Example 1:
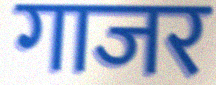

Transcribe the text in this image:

गाजर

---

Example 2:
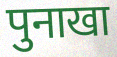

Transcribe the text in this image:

पुनाखा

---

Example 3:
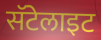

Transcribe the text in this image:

सॅटेलाइट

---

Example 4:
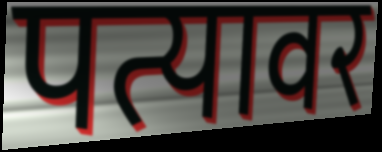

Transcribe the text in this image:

पत्यावर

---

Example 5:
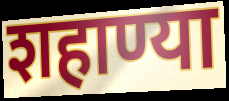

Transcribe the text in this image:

शहाण्या